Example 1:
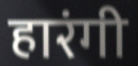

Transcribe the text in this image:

हारंगी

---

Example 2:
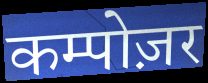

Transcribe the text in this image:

कम्पोज़र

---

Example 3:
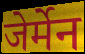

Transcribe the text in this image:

जेर्मेन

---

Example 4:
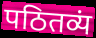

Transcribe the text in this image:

पठितव्यं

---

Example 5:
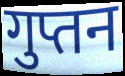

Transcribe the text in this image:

गुप्तन